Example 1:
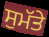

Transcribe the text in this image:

ਸੁਮੱਤੇ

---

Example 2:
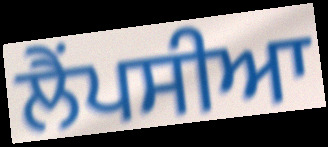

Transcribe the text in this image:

ਲੈਂਪਸੀਆ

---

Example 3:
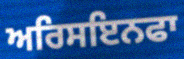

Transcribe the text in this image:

ਅਰਿਸਇਨਫਾ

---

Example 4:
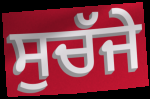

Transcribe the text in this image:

ਸੁਚੱਜੇ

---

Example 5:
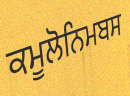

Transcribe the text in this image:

ਕਮੂਲੋਨਿਮਬਸ